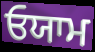
ਓਯਾਮ